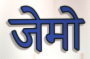
जेमो